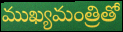
ముఖ్యమంత్రితో